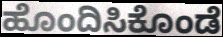
ಹೊಂದಿಸಿಕೊಂಡೆ